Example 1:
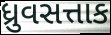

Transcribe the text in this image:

ધ્રુવસત્તાક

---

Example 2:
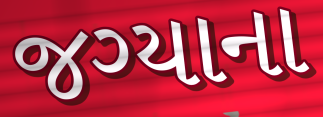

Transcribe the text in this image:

જગ્યાના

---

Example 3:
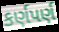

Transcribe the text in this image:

કર્ણપર્ણ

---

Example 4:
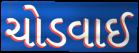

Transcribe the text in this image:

ચોડવાઈ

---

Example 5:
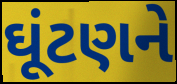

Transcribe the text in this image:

ઘૂંટણને